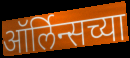
ऑर्लिन्सच्या